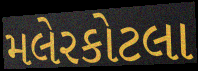
મલેરકોટલા